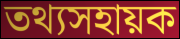
তথ্যসহায়ক